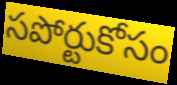
సపోర్టుకోసం